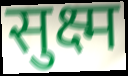
सुक्ष्म